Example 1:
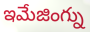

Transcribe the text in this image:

ఇమేజింగ్ను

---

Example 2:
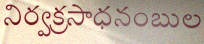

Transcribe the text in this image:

నిర్వక్రసాధనంబుల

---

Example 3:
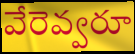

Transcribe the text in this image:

వేరెవ్వరూ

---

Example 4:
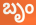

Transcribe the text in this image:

బృం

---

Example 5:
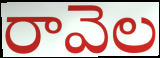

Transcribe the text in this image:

రావెల